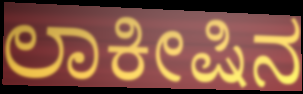
ಲಾಕೀಷಿನ